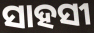
ସାହସୀ